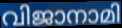
വിജാനാമി